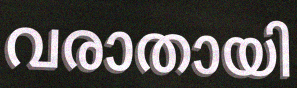
വരാതായി